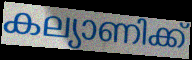
കല്യാണിക്ക്